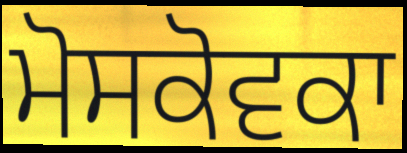
ਮੋਸਕੋਵਕਾ